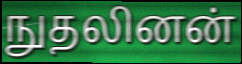
நுதலினன்